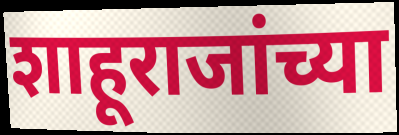
शाहूराजांच्या